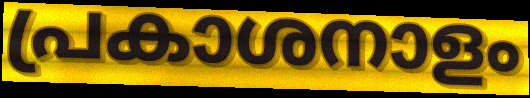
പ്രകാശനാളം